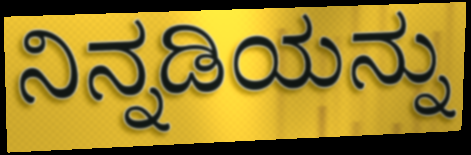
ನಿನ್ನಡಿಯನ್ನು